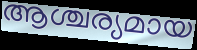
ആശ്ചര്യമായ